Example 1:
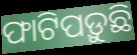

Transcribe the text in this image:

ଫାଟିପଡ଼ୁଛି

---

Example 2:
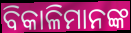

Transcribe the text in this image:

ବିକାଳିମାନଙ୍କ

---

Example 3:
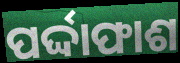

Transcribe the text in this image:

ପର୍ଦ୍ଦାଫାଶ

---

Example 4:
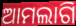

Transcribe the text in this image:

ଆମଲାଗି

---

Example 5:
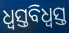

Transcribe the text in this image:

ଧ୍ୱସ୍ତବିଧ୍ୱସ୍ତ